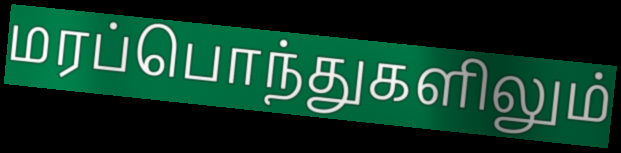
மரப்பொந்துகளிலும்